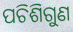
ପଚିଶିଗୁଣ